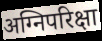
अग्निपरिक्षा